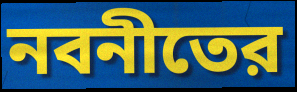
নবনীতের